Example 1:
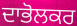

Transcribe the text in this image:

ਦਾਭੋਲਕਰ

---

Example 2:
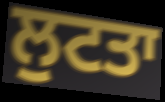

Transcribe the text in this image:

ਲੁਟਤਾ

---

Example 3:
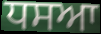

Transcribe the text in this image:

ਧਸਆ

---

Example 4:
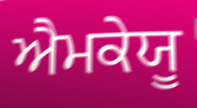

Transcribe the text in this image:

ਐਮਕੇਯੂ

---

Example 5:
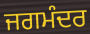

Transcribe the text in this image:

ਜਗਮੰਦਰ